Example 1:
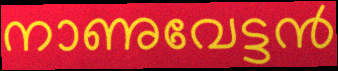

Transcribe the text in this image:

നാണുവേട്ടൻ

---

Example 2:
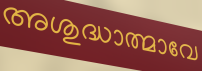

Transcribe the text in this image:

അശുദ്ധാത്മാവേ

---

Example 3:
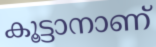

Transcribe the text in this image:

കൂട്ടാനാണ്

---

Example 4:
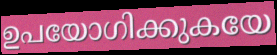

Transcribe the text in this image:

ഉപയോഗിക്കുകയേ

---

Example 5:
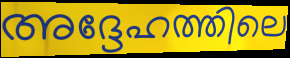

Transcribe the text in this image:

അദ്ദേഹത്തിലെ